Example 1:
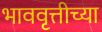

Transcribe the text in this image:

भाववृत्तीच्या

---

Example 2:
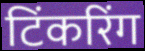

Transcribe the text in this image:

टिंकरिंग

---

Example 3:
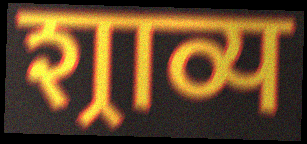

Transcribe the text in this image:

श्राव्य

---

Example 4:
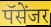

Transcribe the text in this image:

पॅसेंजर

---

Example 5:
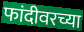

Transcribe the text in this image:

फांदीवरच्या